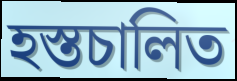
হস্তচালিত